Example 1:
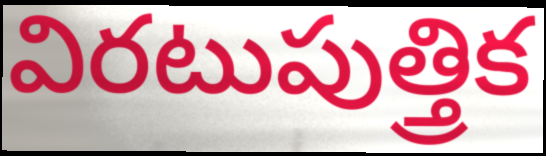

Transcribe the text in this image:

విరటుపుత్త్రిక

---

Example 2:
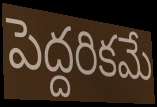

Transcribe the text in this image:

పెద్దరికమే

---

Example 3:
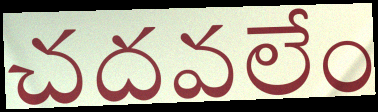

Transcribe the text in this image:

చదవలేం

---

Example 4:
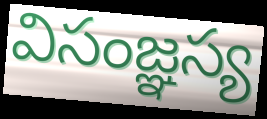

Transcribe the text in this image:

విసంజ్ఞస్య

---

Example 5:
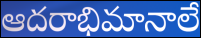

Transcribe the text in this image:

ఆదరాభిమానాలే